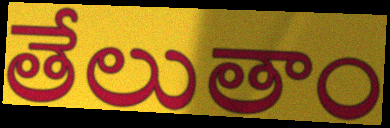
తేలుతాం